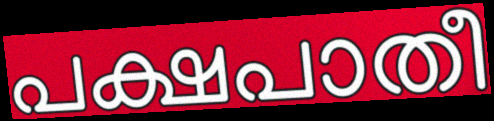
പക്ഷപാതീ